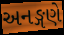
અનઙ્ગણે